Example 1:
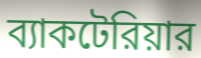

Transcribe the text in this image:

ব্যাকটেরিয়ার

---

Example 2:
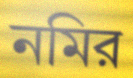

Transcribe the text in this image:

নমির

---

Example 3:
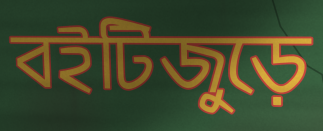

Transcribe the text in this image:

বইটিজুড়ে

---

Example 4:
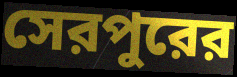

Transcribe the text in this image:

সেরপুরের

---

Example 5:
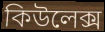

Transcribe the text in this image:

কিউলেক্স